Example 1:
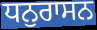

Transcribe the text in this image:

ਧਨੁਰਾਸਨ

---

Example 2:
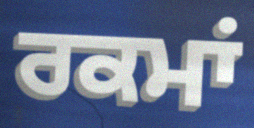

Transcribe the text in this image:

ਰਕਮਾਂ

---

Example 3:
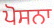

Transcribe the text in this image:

ਪੋਸਨਾ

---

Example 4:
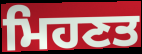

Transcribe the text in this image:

ਮਿਹਣਤ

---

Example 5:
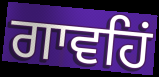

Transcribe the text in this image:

ਗਾਵਹਿਂ